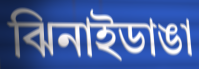
ঝিনাইডাঙা